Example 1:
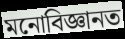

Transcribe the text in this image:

মনোবিজ্ঞানত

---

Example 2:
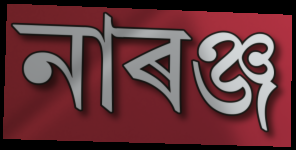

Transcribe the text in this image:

নাৰঞ্জ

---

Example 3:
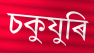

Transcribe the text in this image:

চকুযুৰি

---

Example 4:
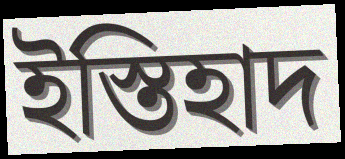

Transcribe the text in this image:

ইস্তিহাদ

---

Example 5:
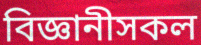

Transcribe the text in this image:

বিজ্ঞানীসকল